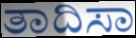
ತಾದಿಸಾ